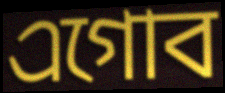
এগোব